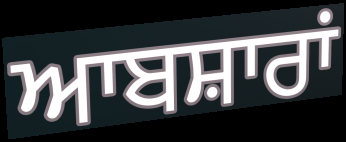
ਆਬਸ਼ਾਰਾਂ